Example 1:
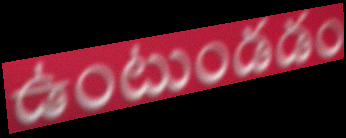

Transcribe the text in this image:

ఉంటుండడం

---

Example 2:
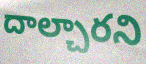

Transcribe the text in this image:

దాల్చారని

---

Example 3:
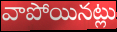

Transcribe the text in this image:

వాపోయినట్లు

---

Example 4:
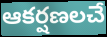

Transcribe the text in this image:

ఆకర్షణలచే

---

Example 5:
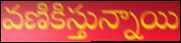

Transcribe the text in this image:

వణికిస్తున్నాయి